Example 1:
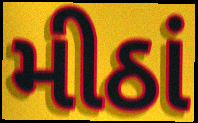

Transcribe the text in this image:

મીઠાં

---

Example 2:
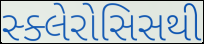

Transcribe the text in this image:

સ્ક્લેરોસિસથી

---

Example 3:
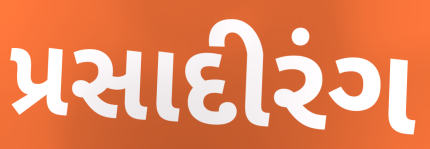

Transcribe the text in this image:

પ્રસાદીરંગ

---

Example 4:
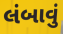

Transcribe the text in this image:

લંબાવું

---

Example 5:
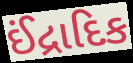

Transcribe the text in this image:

ઈંદ્રાદિક